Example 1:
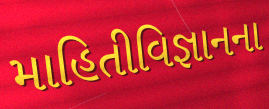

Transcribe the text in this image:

માહિતીવિજ્ઞાનના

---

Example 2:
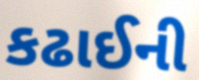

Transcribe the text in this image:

કઢાઈની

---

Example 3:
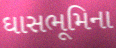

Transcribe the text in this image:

ઘાસભૂમિના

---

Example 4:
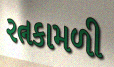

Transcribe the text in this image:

રત્નકામળી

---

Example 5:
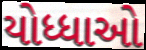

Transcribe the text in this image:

યોધ્ધાઓ